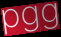
pgg